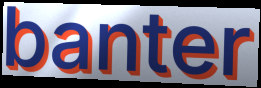
banter